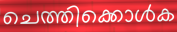
ചെത്തിക്കൊൾക